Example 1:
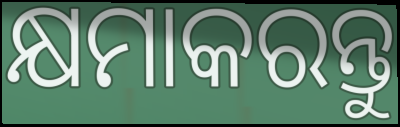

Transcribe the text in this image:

କ୍ଷମାକରନ୍ତୁ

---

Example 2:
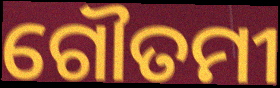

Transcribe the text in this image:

ଗୌତମୀ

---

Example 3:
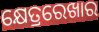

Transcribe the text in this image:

କ୍ଷେତ୍ରରେଖାର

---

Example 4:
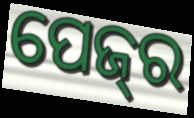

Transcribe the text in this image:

ପେଜ୍‌ର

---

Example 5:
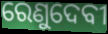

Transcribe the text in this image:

ରେଣୁଦେବୀ